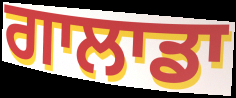
ਗਾਲਾਡਾ